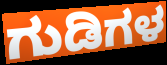
ಗುಡಿಗಳ